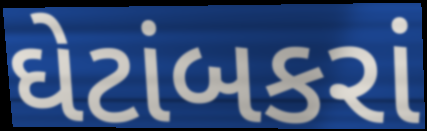
ઘેટાંબકરાં